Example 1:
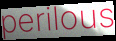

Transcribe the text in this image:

perilous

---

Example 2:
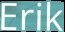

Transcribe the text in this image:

Erik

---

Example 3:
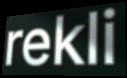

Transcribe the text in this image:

rekli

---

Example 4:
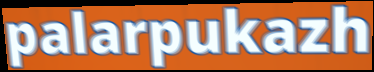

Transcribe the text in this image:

palarpukazh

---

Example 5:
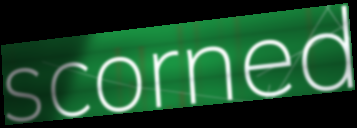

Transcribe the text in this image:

scorned